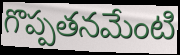
గొప్పతనమేంటి